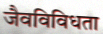
जैवविविधता